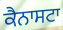
ਕੈਨਾਸਟਾ